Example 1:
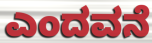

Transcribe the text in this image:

ಎಂದವನೆ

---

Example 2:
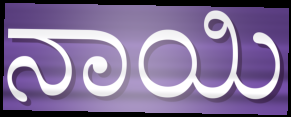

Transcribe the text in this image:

ನಾಯಿ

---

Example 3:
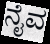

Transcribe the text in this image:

ನೈವ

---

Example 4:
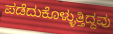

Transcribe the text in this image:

ಪಡೆದುಕೊಳ್ಳುತ್ತಿದ್ದವು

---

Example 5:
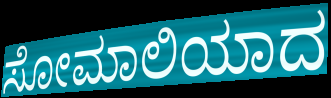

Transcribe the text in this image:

ಸೋಮಾಲಿಯಾದ